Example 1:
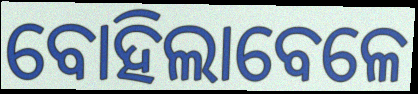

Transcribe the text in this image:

ବୋହିଲାବେଳେ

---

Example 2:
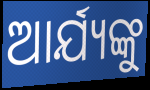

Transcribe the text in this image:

ଆର୍ଯ୍ୟଙ୍କୁ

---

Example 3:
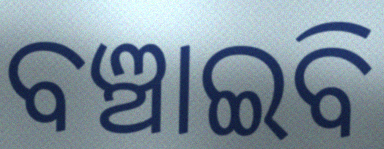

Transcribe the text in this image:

ବଞ୍ଚାଇବି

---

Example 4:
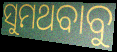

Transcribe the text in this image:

ସୁମଥବାବୁ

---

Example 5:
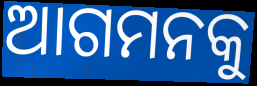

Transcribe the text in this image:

ଆଗମନକୁ